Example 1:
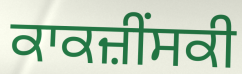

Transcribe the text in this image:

ਕਾਕਜ਼ੀੰਸਕੀ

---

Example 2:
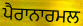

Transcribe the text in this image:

ਪੈਰਾਨਾਰਮਲ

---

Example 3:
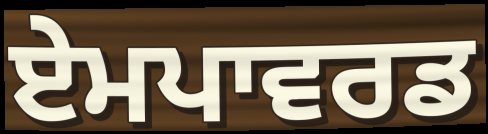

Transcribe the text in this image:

ਏਮਪਾਵਰਡ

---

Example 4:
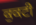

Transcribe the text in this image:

ਕੁਕਟੀ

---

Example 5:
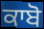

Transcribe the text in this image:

ਕਾਬੋ